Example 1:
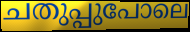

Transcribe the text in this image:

ചതുപ്പുപോലെ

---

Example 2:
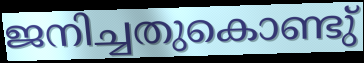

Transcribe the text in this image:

ജനിച്ചതുകൊണ്ടു്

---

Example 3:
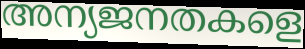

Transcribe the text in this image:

അന്യജനതകളെ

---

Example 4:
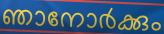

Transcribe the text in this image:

ഞാനോർക്കും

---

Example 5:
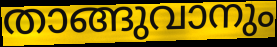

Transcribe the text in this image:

താങ്ങുവാനും